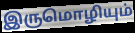
இருமொழியும்